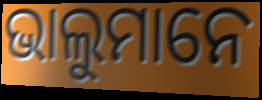
ଭାଲୁମାନେ